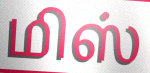
மிஸ்